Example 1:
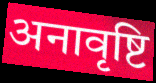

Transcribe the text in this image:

अनावृष्टि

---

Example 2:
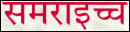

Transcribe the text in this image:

समराइच्च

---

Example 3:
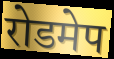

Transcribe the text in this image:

रोडमेप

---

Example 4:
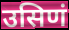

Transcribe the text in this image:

उसिणं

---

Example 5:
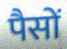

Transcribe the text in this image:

पैसों